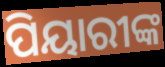
ପିୟାରୀଙ୍କ